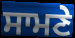
ਸਾਮਣੇ